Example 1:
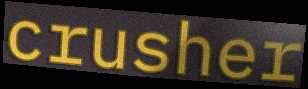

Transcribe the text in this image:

crusher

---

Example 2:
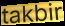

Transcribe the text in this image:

takbir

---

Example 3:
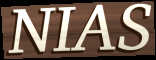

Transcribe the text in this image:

NIAS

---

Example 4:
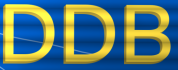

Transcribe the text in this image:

DDB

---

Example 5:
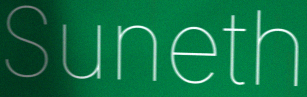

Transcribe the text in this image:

Suneth